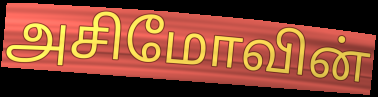
அசிமோவின்